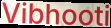
Vibhooti